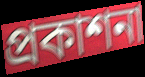
প্ৰকাশনা